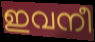
ഇവനീ